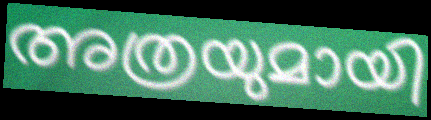
അത്രയുമായി